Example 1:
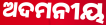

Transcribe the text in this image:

ଅଦମନୀୟ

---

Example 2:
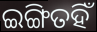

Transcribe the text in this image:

ଇଙ୍ଗିତହିଁ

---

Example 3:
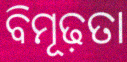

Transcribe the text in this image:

ବିମୂଢ଼ତା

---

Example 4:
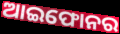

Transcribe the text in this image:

ଆଇଫୋନର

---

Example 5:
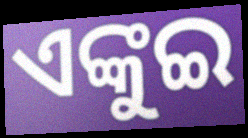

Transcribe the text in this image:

ଏଙ୍କୁଇ